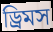
ড্রিমস